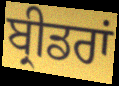
ਬ੍ਰੀਡਰਾਂ